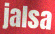
jalsa